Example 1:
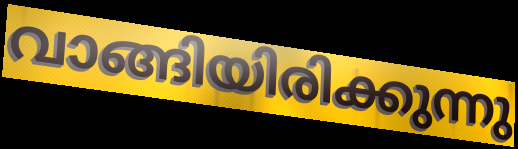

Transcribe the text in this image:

വാങ്ങിയിരിക്കുന്നു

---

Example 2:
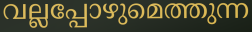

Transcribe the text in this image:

വല്ലപ്പോഴുമെത്തുന്ന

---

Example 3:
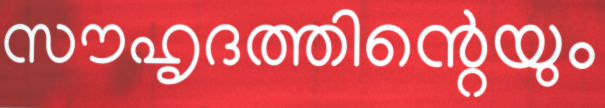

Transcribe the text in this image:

സൗഹൃദത്തിന്റെയും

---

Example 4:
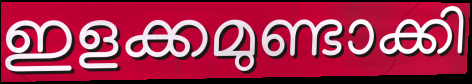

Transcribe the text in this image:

ഇളക്കമുണ്ടാക്കി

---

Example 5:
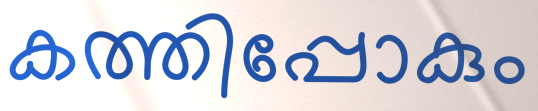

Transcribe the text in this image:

കത്തിപ്പോകും